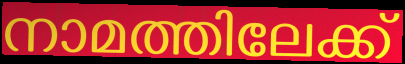
നാമത്തിലേക്ക്